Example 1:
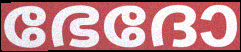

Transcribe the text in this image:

ഭേദോ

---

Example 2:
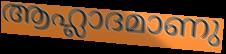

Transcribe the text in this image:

ആഹ്ലാദമാണു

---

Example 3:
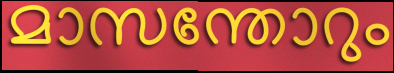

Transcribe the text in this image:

മാസന്തോറും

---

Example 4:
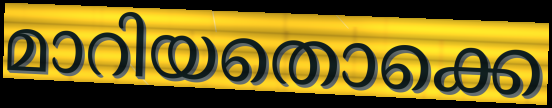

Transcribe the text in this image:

മാറിയതൊക്കെ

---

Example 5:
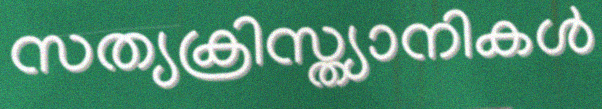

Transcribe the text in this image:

സത്യക്രിസ്ത്യാനികൾ